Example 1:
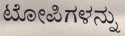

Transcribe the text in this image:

ಟೋಪಿಗಳನ್ನು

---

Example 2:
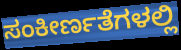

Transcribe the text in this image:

ಸಂಕೀರ್ಣತೆಗಳಲ್ಲಿ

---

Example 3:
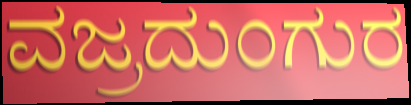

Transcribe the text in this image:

ವಜ್ರದುಂಗುರ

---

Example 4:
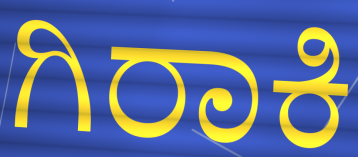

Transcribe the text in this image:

ಗಿರಾಕಿ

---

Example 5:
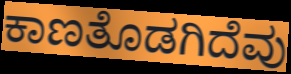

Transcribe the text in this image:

ಕಾಣತೊಡಗಿದೆವು